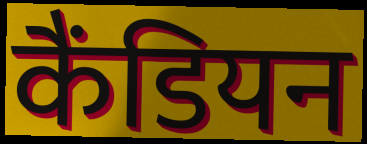
कैंडियन